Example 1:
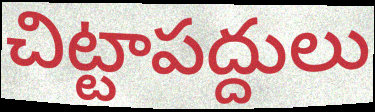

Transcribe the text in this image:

చిట్టాపద్దులు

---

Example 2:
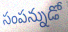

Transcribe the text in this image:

సంపన్నుడో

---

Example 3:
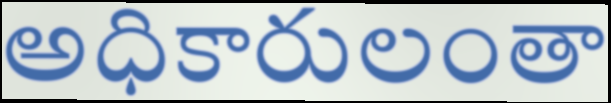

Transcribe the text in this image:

అధికారులంతా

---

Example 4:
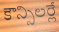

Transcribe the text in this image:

కౌన్సిలర్లే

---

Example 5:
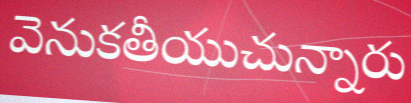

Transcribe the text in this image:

వెనుకతీయుచున్నారు